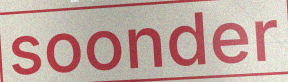
soonder